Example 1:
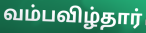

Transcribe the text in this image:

வம்பவிழ்தார்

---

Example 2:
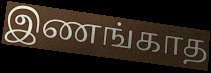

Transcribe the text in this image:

இணங்காத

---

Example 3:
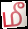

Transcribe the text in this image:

மீ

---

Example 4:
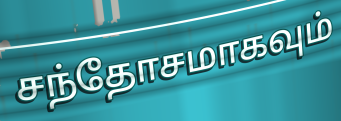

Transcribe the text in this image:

சந்தோசமாகவும்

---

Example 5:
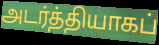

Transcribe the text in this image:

அடர்த்தியாகப்